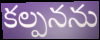
కల్పనను